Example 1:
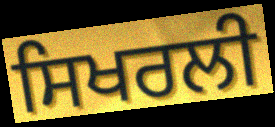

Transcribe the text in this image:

ਸਿਖਰਲੀ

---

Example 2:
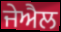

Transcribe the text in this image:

ਜੇਐਲ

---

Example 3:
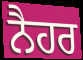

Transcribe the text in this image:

ਨੈਹਰ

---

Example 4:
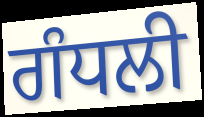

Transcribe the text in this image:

ਗੰਧਲੀ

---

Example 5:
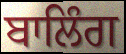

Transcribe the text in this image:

ਬਾਲਿੰਗ